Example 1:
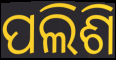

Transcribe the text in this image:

ପଲିଶି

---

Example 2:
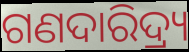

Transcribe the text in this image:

ଗଣଦାରିଦ୍ର୍ୟ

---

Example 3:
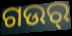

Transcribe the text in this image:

ଗଉର୍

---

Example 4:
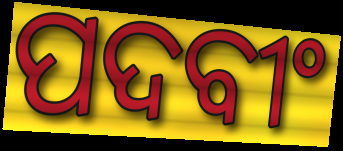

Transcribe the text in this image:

ପଦବୀଂ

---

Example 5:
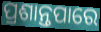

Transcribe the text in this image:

ପ୍ରଶାନ୍ତପାରେ